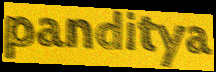
panditya